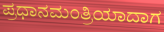
ಪ್ರಧಾನಮಂತ್ರಿಯಾದಾಗ